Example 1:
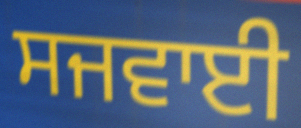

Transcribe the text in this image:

ਸਜਵਾਈ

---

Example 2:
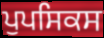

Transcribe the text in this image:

ਪੁਪਸਿਕਸ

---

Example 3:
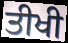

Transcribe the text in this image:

ਤੀਖੀ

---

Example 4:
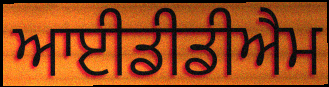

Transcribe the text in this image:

ਆਈਡੀਡੀਐਮ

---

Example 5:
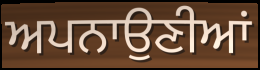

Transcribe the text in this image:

ਅਪਨਾਉਣੀਆਂ